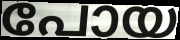
പോയ